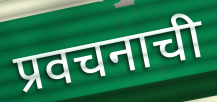
प्रवचनाची